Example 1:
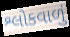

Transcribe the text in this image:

શ્લોકવાળું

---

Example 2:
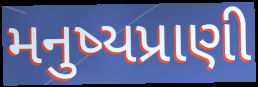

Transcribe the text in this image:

મનુષ્યપ્રાણી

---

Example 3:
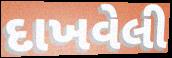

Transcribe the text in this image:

દાખવેલી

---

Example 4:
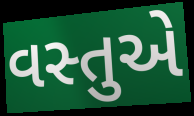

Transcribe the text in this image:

વસ્તુએ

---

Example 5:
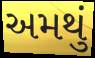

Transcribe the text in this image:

અમથું